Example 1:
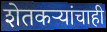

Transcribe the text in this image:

शेतकऱ्यांचाही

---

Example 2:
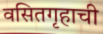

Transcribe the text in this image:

वसितगृहाची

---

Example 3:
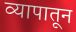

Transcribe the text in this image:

व्यापातून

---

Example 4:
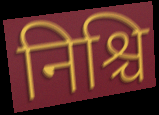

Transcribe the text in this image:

निश्चि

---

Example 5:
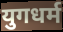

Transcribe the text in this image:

युगधर्म